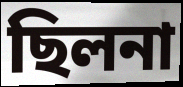
ছিলনা